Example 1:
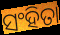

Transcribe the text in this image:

ସଂହିତା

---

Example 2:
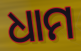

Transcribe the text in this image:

ଧାମ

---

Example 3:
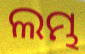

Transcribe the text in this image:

ଲମ୍ଭ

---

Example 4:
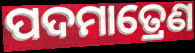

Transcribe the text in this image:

ପଦମାତ୍ରେଣ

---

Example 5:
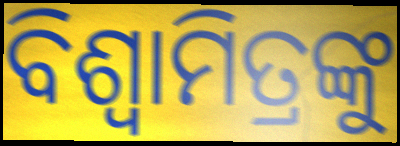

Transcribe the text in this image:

ବିଶ୍ଵାମିତ୍ରଙ୍କୁ